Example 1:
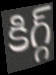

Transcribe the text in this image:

కిగ్గ్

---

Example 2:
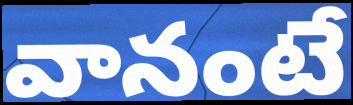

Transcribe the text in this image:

వానంటే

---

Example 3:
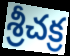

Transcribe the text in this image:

శ్రీచక్ర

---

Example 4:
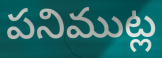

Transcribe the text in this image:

పనిముట్ల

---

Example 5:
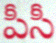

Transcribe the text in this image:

పీసీ